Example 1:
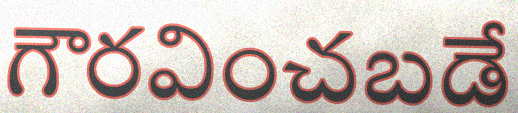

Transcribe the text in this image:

గౌరవించబడే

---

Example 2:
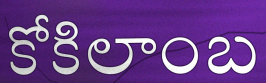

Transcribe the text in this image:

కోకిలాంబ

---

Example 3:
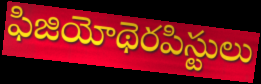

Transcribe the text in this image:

ఫిజియోథెరపిస్టులు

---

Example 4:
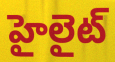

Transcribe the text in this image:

హైలైట్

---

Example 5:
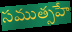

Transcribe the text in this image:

సముత్సహే